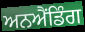
ਅਨਐਂਡਿੰਗ